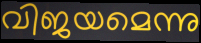
വിജയമെന്നു